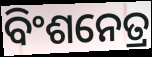
ବିଂଶନେତ୍ର